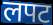
लपट